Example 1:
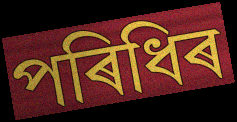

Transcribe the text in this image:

পৰিধিৰ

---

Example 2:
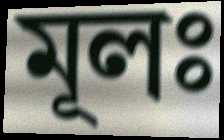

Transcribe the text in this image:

মূলঃ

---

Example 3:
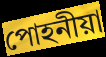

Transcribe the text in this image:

পোহনীয়া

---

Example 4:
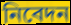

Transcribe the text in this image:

নিবেদন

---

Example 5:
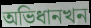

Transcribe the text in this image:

অভিধানখন